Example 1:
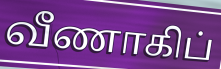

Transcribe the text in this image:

வீணாகிப்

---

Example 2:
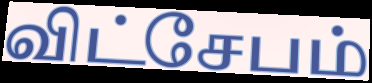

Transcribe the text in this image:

விட்சேபம்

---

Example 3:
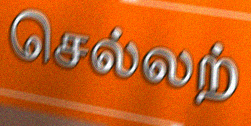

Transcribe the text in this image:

செல்லற்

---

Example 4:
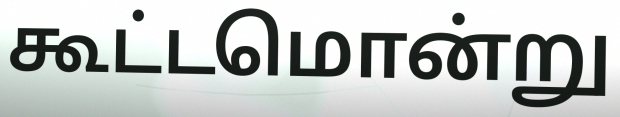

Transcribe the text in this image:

கூட்டமொன்று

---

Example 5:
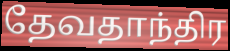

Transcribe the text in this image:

தேவதாந்திர